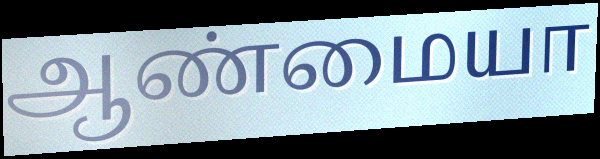
ஆண்மையா